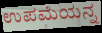
ಉಪಮೆಯನ್ನ